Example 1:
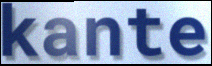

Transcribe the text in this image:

kante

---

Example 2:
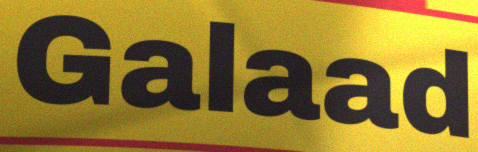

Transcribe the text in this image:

Galaad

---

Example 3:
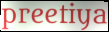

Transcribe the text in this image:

preetiya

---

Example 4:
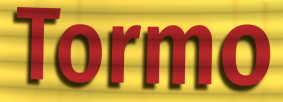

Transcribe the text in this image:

Tormo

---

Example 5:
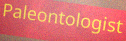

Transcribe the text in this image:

Paleontologist